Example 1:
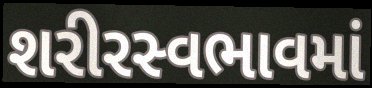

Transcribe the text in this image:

શરીરસ્વભાવમાં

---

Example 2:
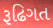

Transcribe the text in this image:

રૂઢિગત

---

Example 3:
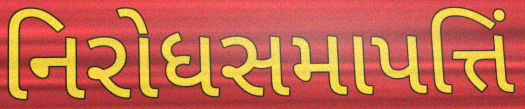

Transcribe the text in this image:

નિરોધસમાપત્તિં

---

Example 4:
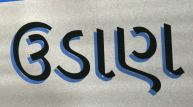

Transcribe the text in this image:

ઉડાણ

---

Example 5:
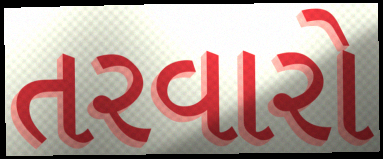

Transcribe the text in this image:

તરવારો